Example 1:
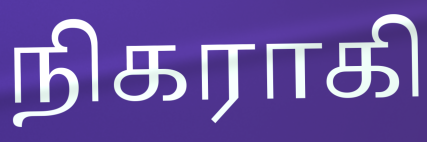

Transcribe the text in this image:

நிகராகி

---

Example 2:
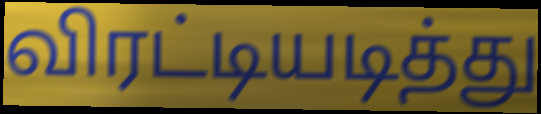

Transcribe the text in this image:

விரட்டியடித்து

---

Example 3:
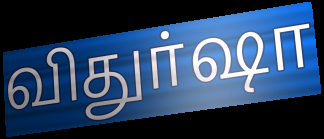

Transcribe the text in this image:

விதுர்ஷா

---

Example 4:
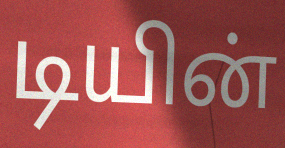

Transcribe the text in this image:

டியின்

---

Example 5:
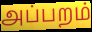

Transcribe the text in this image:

அப்பறம்